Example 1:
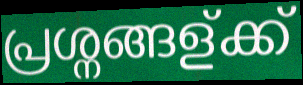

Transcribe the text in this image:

പ്രശ്നങ്ങള്ക്ക്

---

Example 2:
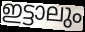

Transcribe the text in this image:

ഇട്ടാലും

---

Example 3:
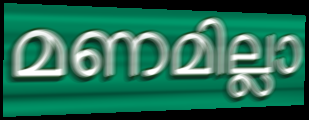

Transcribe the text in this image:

മണമില്ലാ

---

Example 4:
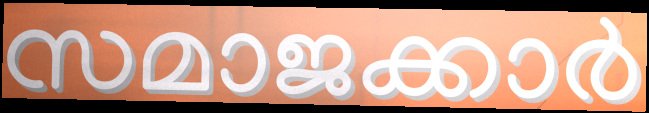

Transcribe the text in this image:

സമാജക്കാർ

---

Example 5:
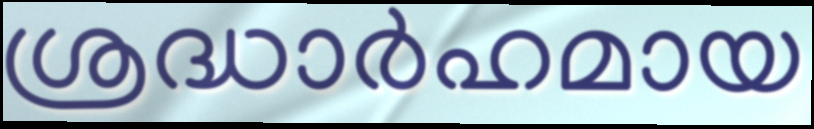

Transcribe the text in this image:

ശ്രദ്ധാർഹമായ